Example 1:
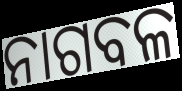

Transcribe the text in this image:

ନାଗବଳ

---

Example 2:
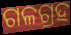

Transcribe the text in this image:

ଗଳଗ୍ରହ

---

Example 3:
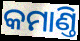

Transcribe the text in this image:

କମାଣ୍ତି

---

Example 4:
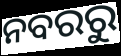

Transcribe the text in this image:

ନବରରୁ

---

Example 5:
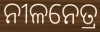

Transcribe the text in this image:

ନୀଳନେତ୍ର